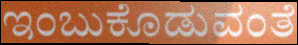
ಇಂಬುಕೊಡುವಂತೆ